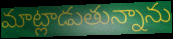
మాట్లాడుతున్నాను